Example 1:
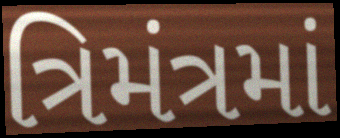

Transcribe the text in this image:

ત્રિમંત્રમાં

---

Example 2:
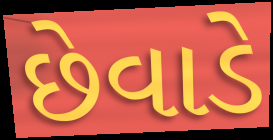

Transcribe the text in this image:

છેવાડે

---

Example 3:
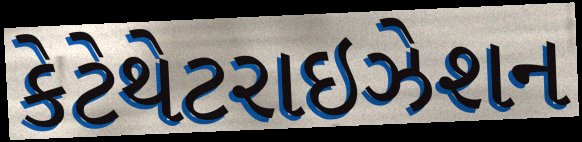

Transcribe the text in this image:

કેટેથેટરાઇઝેશન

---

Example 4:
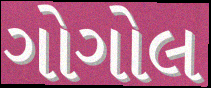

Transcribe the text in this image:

ગોગોલ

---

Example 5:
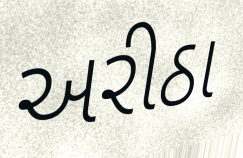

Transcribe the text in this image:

અરીઠા